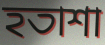
হতাশা